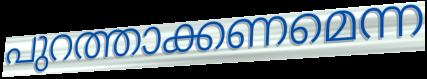
പുറത്താക്കണമെന്ന